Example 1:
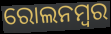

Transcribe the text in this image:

ରୋଲନମ୍ବର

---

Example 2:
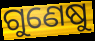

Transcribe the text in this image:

ଗୁଣେଷୁ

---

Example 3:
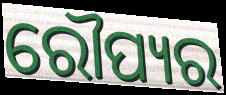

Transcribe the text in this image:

ରୌପ୍ୟର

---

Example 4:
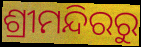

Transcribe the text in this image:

ଶ୍ରୀମନ୍ଦିରରୁ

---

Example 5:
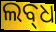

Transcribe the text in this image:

ଲବ୍‍ଧ